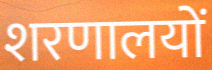
शरणालयों